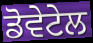
ਡੋਵੇਟੇਲ